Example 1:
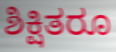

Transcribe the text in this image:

ಶಿಕ್ಷಿತರೂ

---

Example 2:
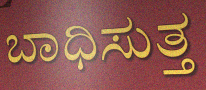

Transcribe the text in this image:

ಬಾಧಿಸುತ್ತ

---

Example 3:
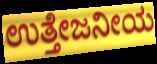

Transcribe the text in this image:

ಉತ್ತೇಜನೀಯ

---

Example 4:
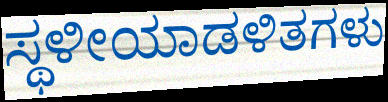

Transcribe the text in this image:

ಸ್ಥಳೀಯಾಡಳಿತಗಳು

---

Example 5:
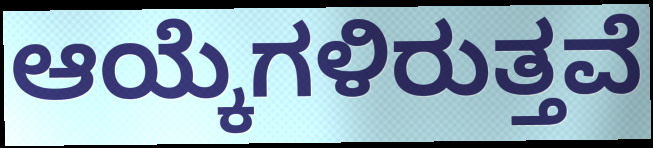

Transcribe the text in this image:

ಆಯ್ಕೆಗಳಿರುತ್ತವೆ